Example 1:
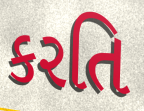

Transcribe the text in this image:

કરતિ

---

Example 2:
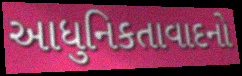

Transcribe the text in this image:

આધુનિકતાવાદનો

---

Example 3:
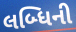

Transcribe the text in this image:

લબ્ધિની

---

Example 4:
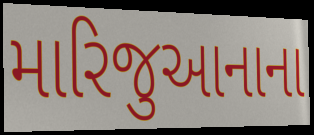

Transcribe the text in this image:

મારિજુઆનાના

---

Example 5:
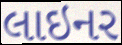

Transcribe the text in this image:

લાઇનર